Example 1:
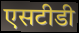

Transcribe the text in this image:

एसटीडी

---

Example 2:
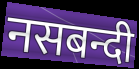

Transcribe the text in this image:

नसबन्दी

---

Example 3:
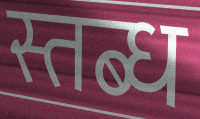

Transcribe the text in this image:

स्तब्ध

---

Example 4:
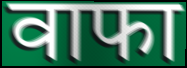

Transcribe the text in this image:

वाफा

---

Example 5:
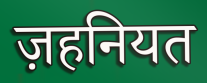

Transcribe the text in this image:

ज़हनियत